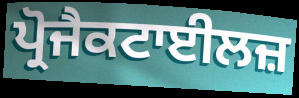
ਪ੍ਰੋਜੈਕਟਾਈਲਜ਼